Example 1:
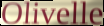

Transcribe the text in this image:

Olivelle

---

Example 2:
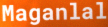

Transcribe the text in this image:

Maganlal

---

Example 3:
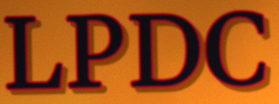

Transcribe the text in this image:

LPDC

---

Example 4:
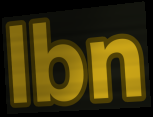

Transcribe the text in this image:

lbn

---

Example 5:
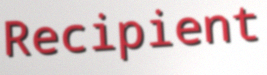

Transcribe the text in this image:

Recipient